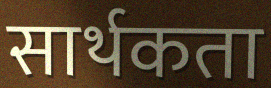
सार्थकता